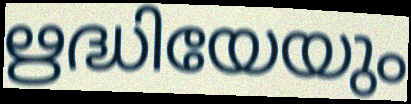
ഋദ്ധിയേയും